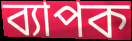
ব্যাপক